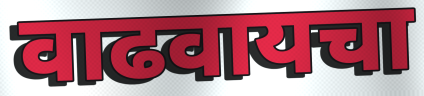
वाढवायचा